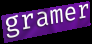
gramer